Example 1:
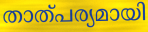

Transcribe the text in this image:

താത്പര്യമായി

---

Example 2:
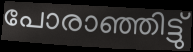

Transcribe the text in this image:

പോരാഞ്ഞിട്ടു്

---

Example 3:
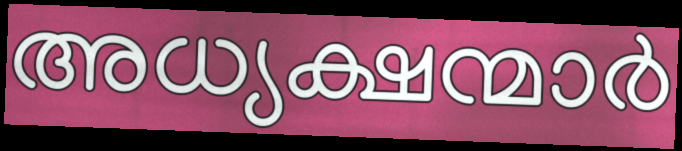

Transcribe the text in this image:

അധ്യക്ഷന്മാർ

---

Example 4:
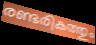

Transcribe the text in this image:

രണ്ടരികത്തും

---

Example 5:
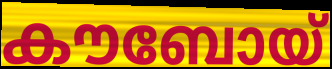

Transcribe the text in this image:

കൗബോയ്